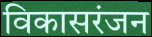
विकासरंजन